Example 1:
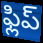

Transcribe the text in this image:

ఫ్లిప్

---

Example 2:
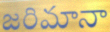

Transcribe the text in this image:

జరిమానా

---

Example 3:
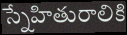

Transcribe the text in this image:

స్నేహితురాలికి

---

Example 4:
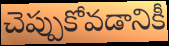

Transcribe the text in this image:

చెప్పుకోవడానికీ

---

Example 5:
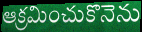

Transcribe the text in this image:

ఆక్రమించుకొనెను